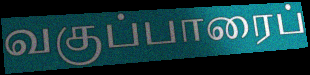
வகுப்பாரைப்